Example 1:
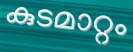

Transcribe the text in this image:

കുടമാറ്റം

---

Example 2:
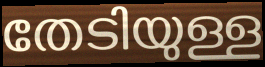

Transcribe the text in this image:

തേടിയുള്ള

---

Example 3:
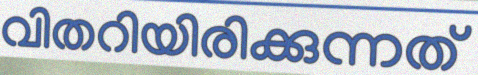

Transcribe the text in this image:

വിതറിയിരിക്കുന്നത്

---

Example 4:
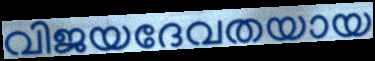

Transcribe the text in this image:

വിജയദേവതയായ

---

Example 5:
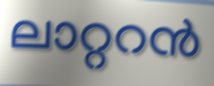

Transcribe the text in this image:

ലാറ്ററൻ